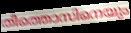
തീത്തൊസിനെയും